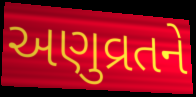
અણુવ્રતને